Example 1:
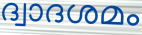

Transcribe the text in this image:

ദ്വാദശമം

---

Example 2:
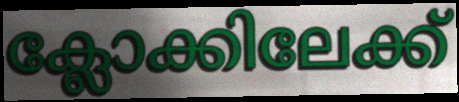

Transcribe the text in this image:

ക്ലോക്കിലേക്ക്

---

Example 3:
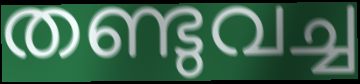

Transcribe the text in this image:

തണ്ടുവച്ച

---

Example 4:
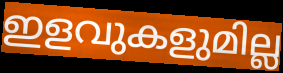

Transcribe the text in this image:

ഇളവുകളുമില്ല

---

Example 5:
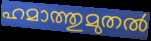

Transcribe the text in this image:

ഹമാത്തുമുതൽ